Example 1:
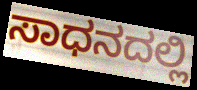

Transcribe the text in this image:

ಸಾಧನದಲ್ಲಿ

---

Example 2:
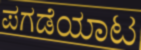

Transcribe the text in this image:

ಪಗಡೆಯಾಟ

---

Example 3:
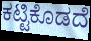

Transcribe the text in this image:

ಕಟ್ಟಿಕೊಡದೆ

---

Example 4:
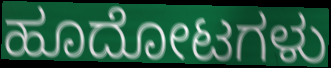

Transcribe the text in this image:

ಹೂದೋಟಗಳು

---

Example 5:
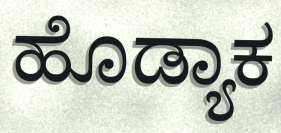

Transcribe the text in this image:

ಹೊಡ್ಯಾಕ